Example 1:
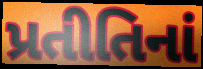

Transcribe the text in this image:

પ્રતીતિનાં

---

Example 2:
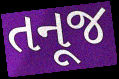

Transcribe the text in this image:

તનૂજ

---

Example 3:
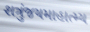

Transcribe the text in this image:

શત્રુંજયમાહાત્મ્ય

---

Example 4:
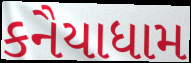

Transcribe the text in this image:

કનૈયાધામ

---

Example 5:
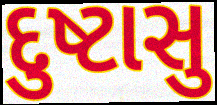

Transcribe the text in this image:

દુષ્ટાસુ